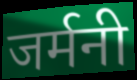
जर्मनी